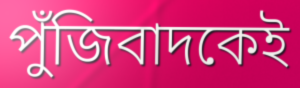
পুঁজিবাদকেই